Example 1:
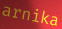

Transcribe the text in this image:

arnika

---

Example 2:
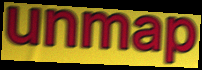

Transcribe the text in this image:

unmap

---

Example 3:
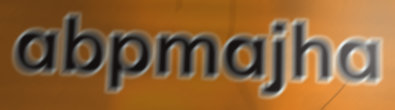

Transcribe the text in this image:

abpmajha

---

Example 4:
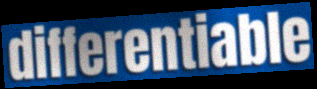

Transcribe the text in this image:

differentiable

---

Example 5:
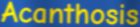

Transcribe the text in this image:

Acanthosis